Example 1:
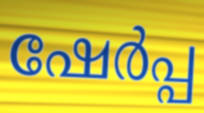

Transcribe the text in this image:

ഷേർപ്പ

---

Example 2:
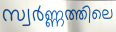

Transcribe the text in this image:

സ്വർണ്ണത്തിലെ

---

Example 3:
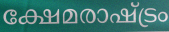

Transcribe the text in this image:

ക്ഷേമരാഷ്ട്രം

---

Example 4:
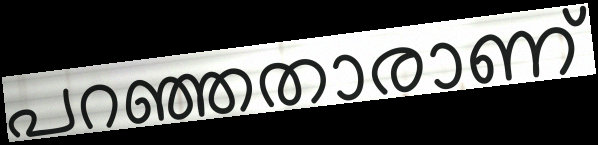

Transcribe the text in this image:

പറഞ്ഞതാരാണ്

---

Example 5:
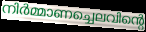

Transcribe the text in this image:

നിർമ്മാണച്ചെലവിന്റെ